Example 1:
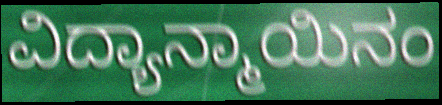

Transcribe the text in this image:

ವಿದ್ಯಾನ್ಮಾಯಿನಂ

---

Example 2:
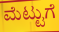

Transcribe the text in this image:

ಮೆಟ್ಟುಗೆ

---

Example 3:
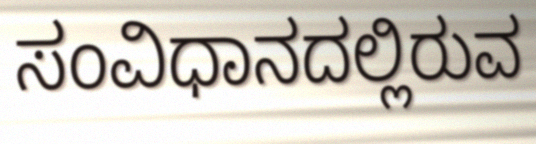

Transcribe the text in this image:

ಸಂವಿಧಾನದಲ್ಲಿರುವ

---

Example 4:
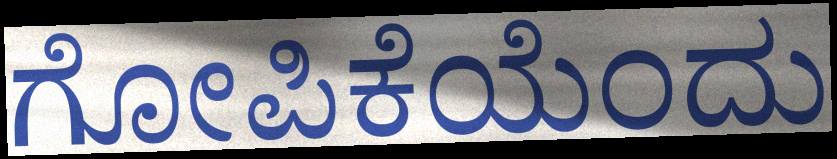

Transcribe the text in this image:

ಗೋಪಿಕೆಯೆಂದು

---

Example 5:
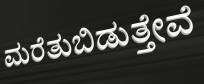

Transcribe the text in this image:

ಮರೆತುಬಿಡುತ್ತೇವೆ